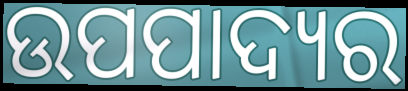
ଉପପାଦ୍ୟର